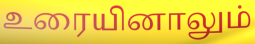
உரையினாலும்